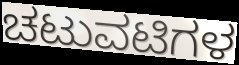
ಚಟುವಟಿಗಳ